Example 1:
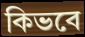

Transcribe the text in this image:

কিভবে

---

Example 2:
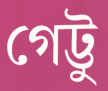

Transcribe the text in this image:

গেট্টু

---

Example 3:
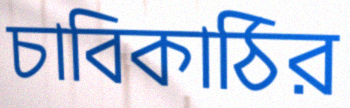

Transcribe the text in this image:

চাবিকাঠির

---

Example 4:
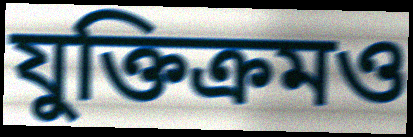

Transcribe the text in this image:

যুক্তিক্রমও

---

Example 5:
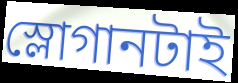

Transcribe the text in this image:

স্লোগানটাই